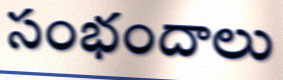
సంభందాలు